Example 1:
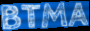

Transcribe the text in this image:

BTMA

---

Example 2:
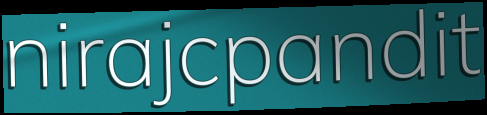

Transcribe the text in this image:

nirajcpandit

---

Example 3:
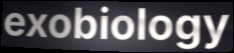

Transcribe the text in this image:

exobiology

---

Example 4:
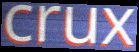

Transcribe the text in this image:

crux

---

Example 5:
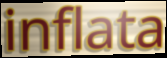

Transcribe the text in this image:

inflata